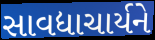
સાવદ્યાચાર્યને